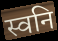
स्वनि